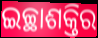
ଇଚ୍ଛାଶକ୍ତିର